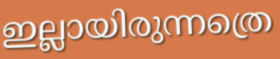
ഇല്ലായിരുന്നത്രെ